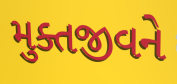
મુક્તજીવને